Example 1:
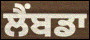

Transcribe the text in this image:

ਲੈਂਬਡਾ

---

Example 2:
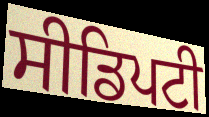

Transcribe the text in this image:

ਸੀਡਿਪਟੀ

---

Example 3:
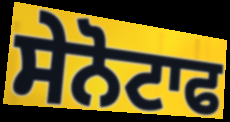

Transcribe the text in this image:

ਸੇਨੋਟਾਫ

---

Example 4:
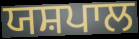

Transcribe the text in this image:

ਯਸ਼ਪਾਲ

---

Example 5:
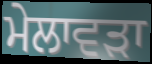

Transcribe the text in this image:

ਮੇਲਾਵੜਾ